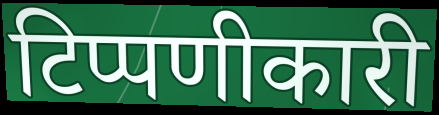
टिप्पणीकारी